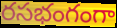
రసభంగంగా